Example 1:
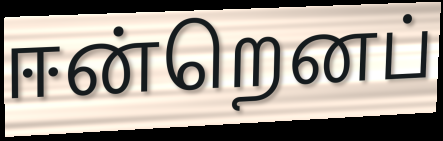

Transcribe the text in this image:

ஈன்றெனப்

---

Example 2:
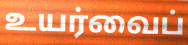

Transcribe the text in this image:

உயர்வைப்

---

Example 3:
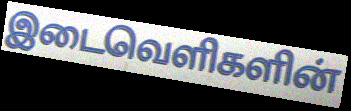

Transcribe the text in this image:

இடைவெளிகளின்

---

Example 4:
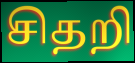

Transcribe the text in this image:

சிதறி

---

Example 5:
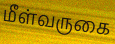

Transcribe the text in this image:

மீள்வருகை